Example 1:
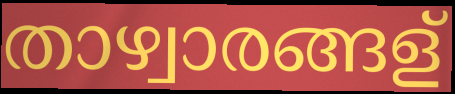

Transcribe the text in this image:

താഴ്വാരങ്ങള്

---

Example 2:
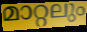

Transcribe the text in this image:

മാറ്റലും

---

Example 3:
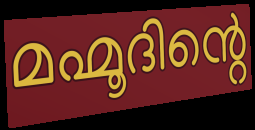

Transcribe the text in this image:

മഹ്മൂദിന്റെ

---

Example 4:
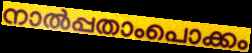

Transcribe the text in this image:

നാൽപ്പതാംപൊക്കം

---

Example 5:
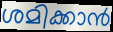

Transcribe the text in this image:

ശമിക്കാൻ